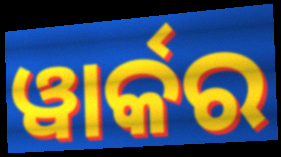
ୱାର୍କର